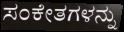
ಸಂಕೇತಗಳನ್ನು